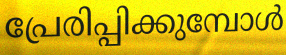
പ്രേരിപ്പിക്കുമ്പോൾ